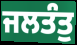
ਜਲਤੰਤੁ